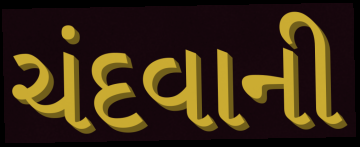
ચંદવાની